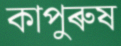
কাপুৰুষ